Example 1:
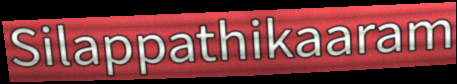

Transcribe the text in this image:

Silappathikaaram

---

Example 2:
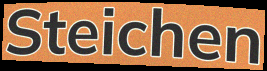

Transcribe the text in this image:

Steichen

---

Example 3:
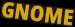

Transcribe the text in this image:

GNOME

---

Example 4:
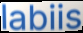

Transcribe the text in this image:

labiis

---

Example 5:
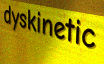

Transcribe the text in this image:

dyskinetic